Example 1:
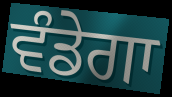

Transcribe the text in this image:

ਵੰਡੇਗਾ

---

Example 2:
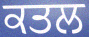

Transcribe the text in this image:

ਕਤਲ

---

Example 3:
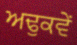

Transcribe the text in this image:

ਅਢੁਕਵੇਂ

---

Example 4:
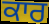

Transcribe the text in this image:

ਕਾਰ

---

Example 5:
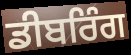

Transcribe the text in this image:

ਡੀਬਰਿੰਗ